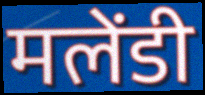
मलेंडी